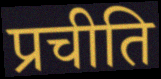
प्रचीति